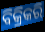
ବିକ୍ରିକରି